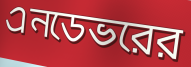
এনডেভরের